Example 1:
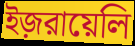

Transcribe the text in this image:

ইজ়রায়েলি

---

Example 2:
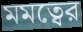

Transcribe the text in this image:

মমত্বের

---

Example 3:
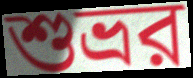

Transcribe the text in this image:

শুভ্রর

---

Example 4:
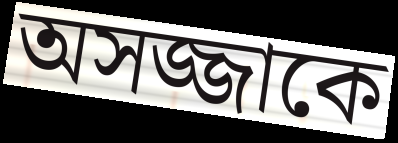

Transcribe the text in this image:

অসজ্জাকে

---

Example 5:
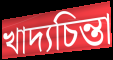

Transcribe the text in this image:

খাদ্যচিন্তা